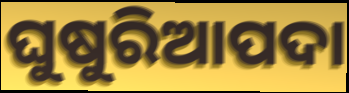
ଘୁଷୁରିଆପଦା